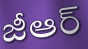
జీఆర్